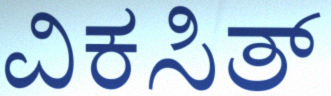
ವಿಕಸಿತ್